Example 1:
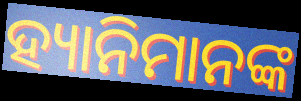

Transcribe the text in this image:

ହ୍ୟାନିମାନଙ୍କ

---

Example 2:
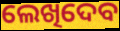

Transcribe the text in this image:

ଲେଖିଦେବ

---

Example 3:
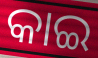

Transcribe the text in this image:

କାଇ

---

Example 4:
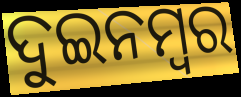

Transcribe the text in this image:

ଦୁଇନମ୍ୱର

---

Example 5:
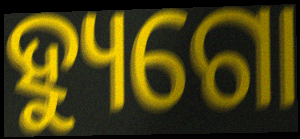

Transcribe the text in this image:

ହ୍ୟୁଗୋ